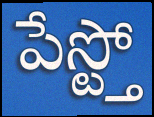
పేస్ట్తో